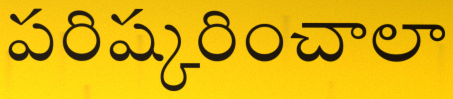
పరిష్కరించాలా